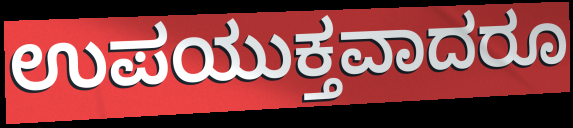
ಉಪಯುಕ್ತವಾದರೂ